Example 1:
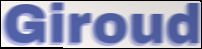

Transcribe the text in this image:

Giroud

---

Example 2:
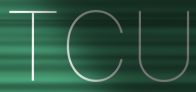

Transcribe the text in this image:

TCU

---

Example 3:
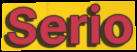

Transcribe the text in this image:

Serio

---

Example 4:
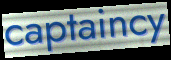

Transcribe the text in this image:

captaincy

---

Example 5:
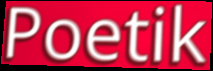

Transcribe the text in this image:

Poetik